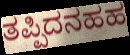
ತಪ್ಪಿದನಹಹ